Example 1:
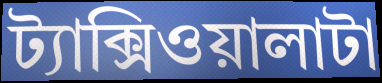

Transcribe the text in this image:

ট্যাক্সিওয়ালাটা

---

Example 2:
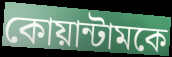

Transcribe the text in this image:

কোয়ান্টামকে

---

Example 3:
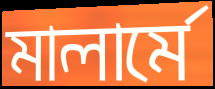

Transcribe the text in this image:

মালার্মে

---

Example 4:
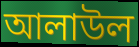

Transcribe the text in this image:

আলাউল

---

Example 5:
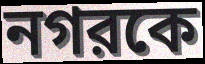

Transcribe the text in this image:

নগরকে